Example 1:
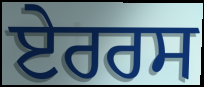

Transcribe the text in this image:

ਏਰਰਸ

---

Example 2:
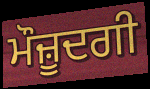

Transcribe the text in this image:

ਮੌਜ਼ੂਦਗੀ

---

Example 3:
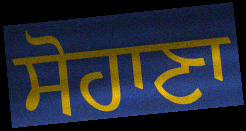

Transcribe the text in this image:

ਸੋਹਾਣਾ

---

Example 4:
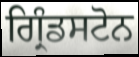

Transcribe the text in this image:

ਗ੍ਰਿੰਡਸਟੋਨ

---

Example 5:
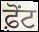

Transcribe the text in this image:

ਫ਼ੋਂਟ